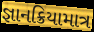
જ્ઞાનક્રિયામાત્ર